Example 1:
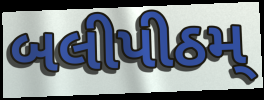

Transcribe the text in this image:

બલીપીઠમ્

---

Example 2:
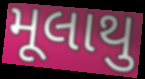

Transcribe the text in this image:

મૂલાથુ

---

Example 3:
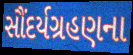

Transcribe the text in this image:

સૌંદર્યગ્રહણના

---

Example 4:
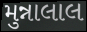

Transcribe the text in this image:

મુન્નાલાલ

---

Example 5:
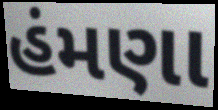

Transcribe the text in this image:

હંમણા